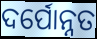
ଦର୍ପୋନ୍ନତ